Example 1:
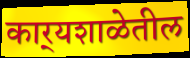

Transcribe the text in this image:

कार्यशाळेतील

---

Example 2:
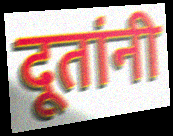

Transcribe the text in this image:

दूतांनी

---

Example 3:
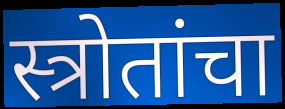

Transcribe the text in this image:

स्त्रोतांचा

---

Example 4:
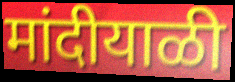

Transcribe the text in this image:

मांदीयाळी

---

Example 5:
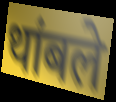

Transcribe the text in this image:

थांबले